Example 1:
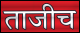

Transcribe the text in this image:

ताजीच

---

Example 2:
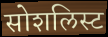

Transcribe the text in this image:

सोशलिस्ट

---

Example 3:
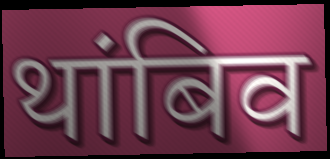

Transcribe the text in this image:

थांबिव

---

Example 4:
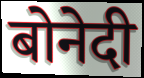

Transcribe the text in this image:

बोनेदी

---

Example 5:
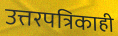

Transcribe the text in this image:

उत्तरपत्रिकाही